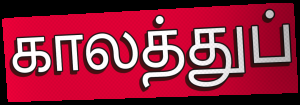
காலத்துப்